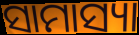
ସାମାସ୍ୟା